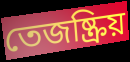
তেজষ্ক্রিয়